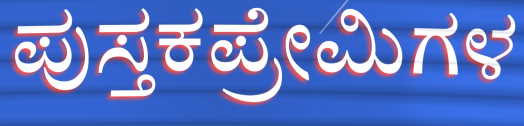
ಪುಸ್ತಕಪ್ರೇಮಿಗಳ